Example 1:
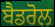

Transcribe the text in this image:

ਬੈਡਰੋਲ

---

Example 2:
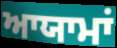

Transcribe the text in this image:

ਆਯਾਮਾਂ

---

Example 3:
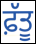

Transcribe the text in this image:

ਫ਼ੱਤੂ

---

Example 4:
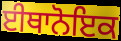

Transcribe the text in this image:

ਈਥਾਨੋਇਕ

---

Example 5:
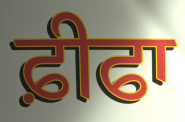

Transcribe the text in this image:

ਫ਼ੀਫਾ